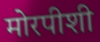
मोरपीशी